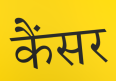
कैंसर